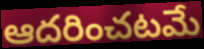
ఆదరించటమే